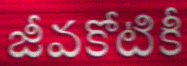
జీవకోటికీ